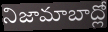
నిజామాబాద్లో